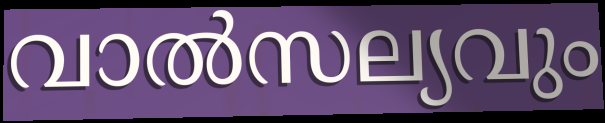
വാൽസല്യവും